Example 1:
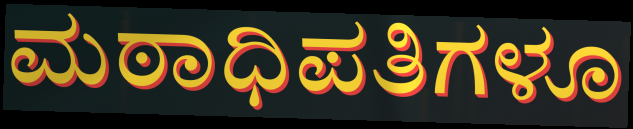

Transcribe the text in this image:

ಮಠಾಧಿಪತಿಗಳೂ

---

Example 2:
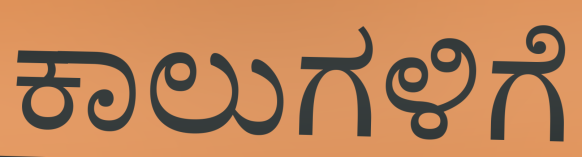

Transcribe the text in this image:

ಕಾಲುಗಳಿಗೆ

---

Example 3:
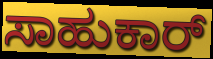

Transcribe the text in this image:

ಸಾಹುಕಾರ್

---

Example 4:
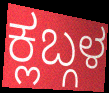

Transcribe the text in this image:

ಕ್ಲಬ್ಗಳ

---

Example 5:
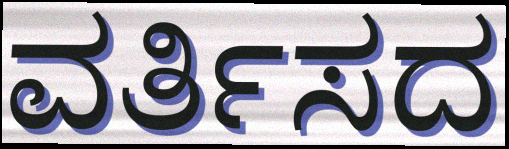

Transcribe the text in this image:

ವರ್ತಿಸದ